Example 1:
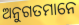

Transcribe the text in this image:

ଅନୁଗତମାନେ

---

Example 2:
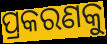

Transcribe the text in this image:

ପ୍ରକରଣକୁ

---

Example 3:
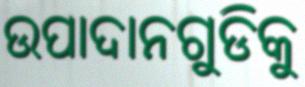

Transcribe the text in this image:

ଉପାଦାନଗୁଡିକୁ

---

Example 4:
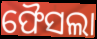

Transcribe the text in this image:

ଫୈସଲା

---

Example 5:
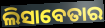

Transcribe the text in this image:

ଲିସାବେତାର